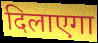
दिलाएगा